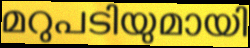
മറുപടിയുമായി